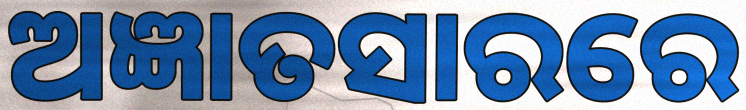
ଅଜ୍ଞାତସାରରେ